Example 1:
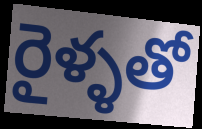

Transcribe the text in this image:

రైళ్ళతో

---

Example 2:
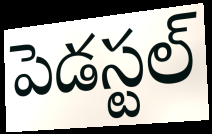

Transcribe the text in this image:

పెడస్టల్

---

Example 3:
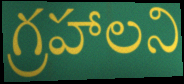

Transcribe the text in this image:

గ్రహాలని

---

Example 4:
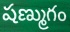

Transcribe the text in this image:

షణ్ముగం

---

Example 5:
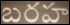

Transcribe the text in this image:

బరహ